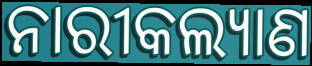
ନାରୀକଲ୍ୟାଣ